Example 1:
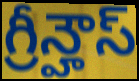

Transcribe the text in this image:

గ్రీన్హౌస్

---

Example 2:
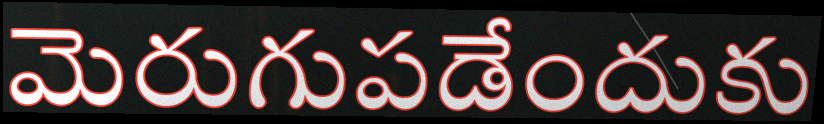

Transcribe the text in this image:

మెరుగుపడేందుకు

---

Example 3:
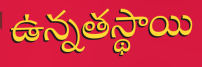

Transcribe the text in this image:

ఉన్నతస్థాయి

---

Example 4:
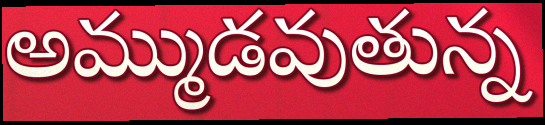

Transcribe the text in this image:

అమ్ముడవుతున్న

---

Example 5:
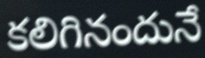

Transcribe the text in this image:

కలిగినందునే